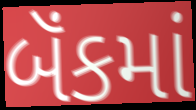
બૅંકમાં